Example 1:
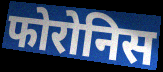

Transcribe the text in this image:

फोरोनिस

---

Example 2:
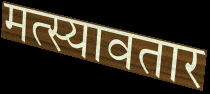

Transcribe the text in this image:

मत्स्यावतार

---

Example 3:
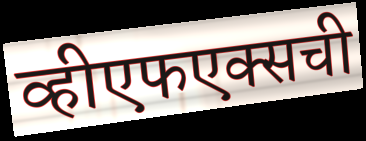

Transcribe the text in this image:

व्हीएफएक्सची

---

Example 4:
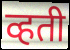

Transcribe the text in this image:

व्हती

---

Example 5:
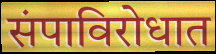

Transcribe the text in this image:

संपाविरोधात